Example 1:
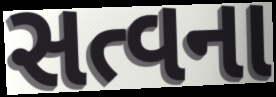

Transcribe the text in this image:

સત્વના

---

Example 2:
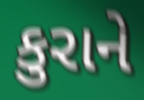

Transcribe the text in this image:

કુરાને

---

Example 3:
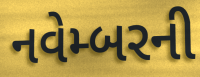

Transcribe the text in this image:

નવેમ્બરની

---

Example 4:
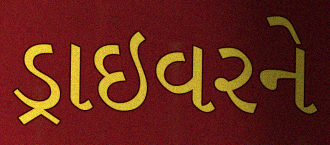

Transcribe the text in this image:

ડ્રાઇવરને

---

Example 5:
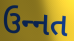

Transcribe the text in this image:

ઉન્‍નત